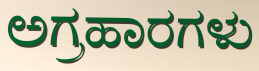
ಅಗ್ರಹಾರಗಳು